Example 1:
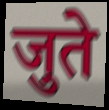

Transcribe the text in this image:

जुते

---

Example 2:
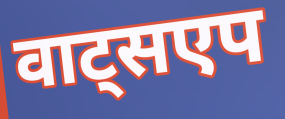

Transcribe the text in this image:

वाट्सएप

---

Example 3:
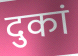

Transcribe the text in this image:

दुकां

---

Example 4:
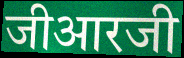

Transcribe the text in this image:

जीआरजी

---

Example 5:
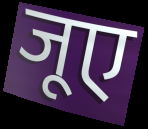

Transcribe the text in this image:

जूए